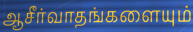
ஆசீர்வாதங்களையும்